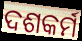
ଦଶକର୍ମ